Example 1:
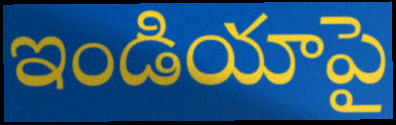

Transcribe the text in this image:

ఇండియాపై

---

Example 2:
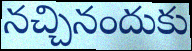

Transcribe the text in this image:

నచ్చినందుకు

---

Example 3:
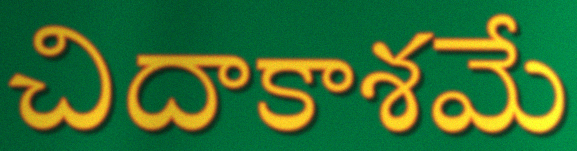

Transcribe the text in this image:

చిదాకాశమే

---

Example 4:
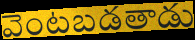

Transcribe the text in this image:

వెంటబడతాడు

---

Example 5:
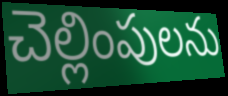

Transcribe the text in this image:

చెల్లింపులను